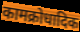
कामक्रोधादिक